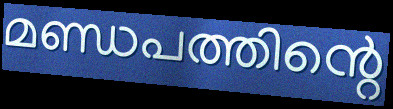
മണ്ഡപത്തിന്റെ